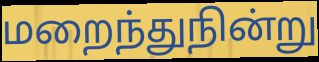
மறைந்துநின்று